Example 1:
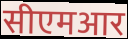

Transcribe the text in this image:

सीएमआर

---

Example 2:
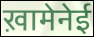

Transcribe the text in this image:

ख़ामेनेई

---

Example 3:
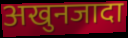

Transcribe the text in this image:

अखुनजादा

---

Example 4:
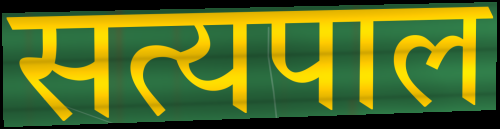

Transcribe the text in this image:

सत्यपाल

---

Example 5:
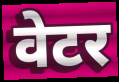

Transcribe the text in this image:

वेटर